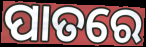
ପାତରେ